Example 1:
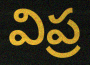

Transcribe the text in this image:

విప్ర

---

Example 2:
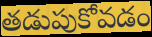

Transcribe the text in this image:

తడుపుకోవడం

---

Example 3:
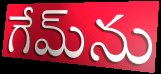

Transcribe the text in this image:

గేమ్‌ను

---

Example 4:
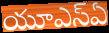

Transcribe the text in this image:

యూఎస్ఏ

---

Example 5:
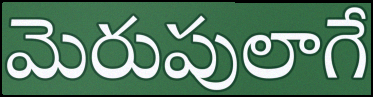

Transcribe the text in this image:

మెరుపులాగే